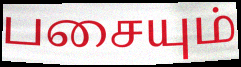
பசையும்